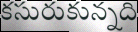
కసురుకున్నది